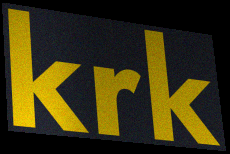
krk